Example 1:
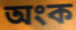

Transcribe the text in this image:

অংক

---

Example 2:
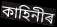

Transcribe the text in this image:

কাহিনীৰ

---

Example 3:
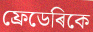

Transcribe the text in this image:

ফ্ৰেডেৰিকে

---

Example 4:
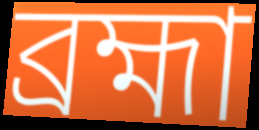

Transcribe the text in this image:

ব্ৰহ্মা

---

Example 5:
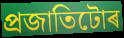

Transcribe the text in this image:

প্ৰজাতিটোৰ